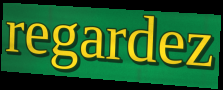
regardez